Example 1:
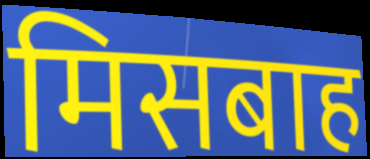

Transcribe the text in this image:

मिसबाह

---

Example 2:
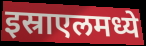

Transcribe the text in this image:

इस्राएलमध्ये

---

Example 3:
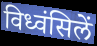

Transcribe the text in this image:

विध्वंसिलें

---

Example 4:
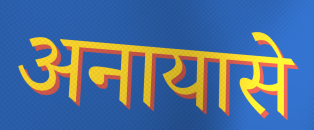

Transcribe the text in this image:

अनायासे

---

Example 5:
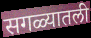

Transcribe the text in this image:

सगळ्यातली